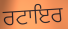
ਰਟਾਇਰ